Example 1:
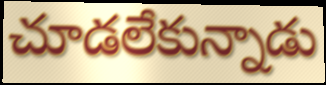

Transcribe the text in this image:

చూడలేకున్నాడు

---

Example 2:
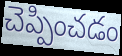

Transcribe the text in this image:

చెప్పించడం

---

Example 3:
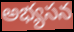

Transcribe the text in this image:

అభ్యసన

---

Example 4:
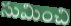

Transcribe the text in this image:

సుమించి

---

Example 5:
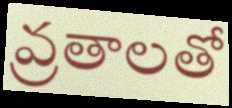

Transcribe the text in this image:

వ్రతాలతో